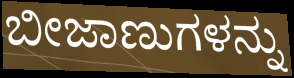
ಬೀಜಾಣುಗಳನ್ನು